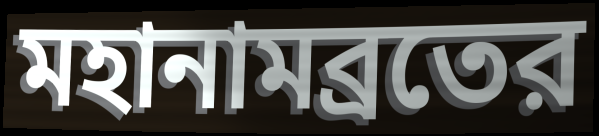
মহানামব্রতের